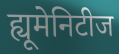
ह्यूमेनिटीज